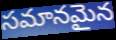
సమానమైన